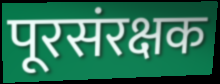
पूरसंरक्षक